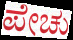
ಪೇಚು